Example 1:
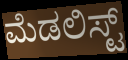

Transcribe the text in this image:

ಮೆಡಲಿಸ್ಟ್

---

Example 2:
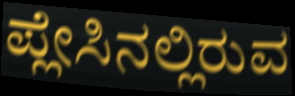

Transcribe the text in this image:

ಪ್ಲೇಸಿನಲ್ಲಿರುವ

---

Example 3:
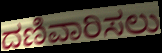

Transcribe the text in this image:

ದಣಿವಾರಿಸಲು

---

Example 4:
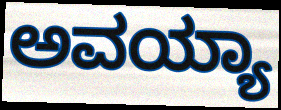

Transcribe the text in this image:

ಅವಯ್ಯಾ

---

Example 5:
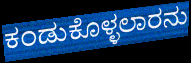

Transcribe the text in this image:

ಕಂಡುಕೊಳ್ಳಲಾರನು